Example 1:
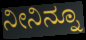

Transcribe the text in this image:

ನೀನಿನ್ನೂ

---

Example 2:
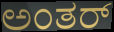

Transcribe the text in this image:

ಅಂತರ್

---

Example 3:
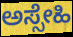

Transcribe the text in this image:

ಅಸ್ಸೇಹಿ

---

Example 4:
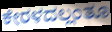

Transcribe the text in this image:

ಕೇರಳದಲ್ಲಂತೂ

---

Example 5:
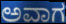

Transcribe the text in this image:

ಅವಾಗ